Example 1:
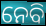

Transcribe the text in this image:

ନେବି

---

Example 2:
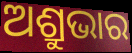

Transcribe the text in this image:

ଅଶ୍ରୁଭାର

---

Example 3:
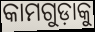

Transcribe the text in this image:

କାମଗୁଡ଼ାକୁ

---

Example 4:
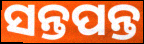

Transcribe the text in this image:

ସନ୍ତପନ୍ତ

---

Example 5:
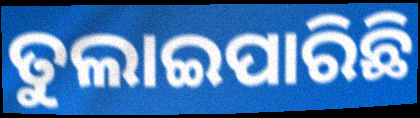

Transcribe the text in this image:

ତୁଲାଇପାରିଛି